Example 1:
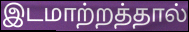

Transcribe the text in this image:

இடமாற்றத்தால்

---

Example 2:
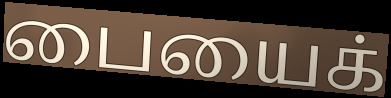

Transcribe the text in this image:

பையைக்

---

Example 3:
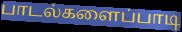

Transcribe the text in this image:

பாடல்களைப்பாடி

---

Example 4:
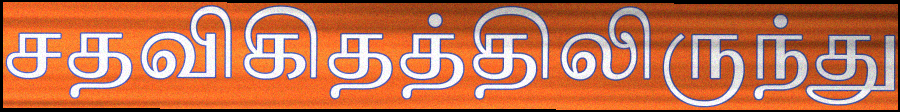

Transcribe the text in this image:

சதவிகிதத்திலிருந்து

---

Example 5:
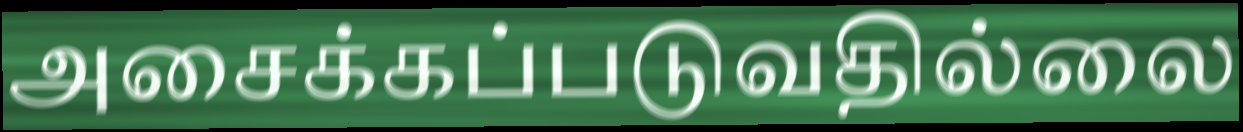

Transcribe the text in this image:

அசைக்கப்படுவதில்லை